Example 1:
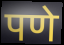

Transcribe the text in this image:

पणे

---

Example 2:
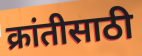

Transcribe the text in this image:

क्रांतीसाठी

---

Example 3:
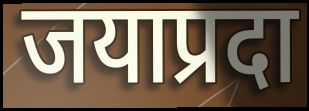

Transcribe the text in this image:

जयाप्रदा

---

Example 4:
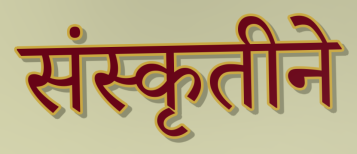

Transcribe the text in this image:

संस्कृतीने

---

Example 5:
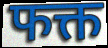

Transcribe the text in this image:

फक्त